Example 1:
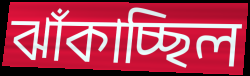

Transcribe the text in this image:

ঝাঁকাচ্ছিল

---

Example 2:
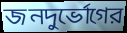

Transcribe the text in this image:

জনদুর্ভোগের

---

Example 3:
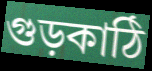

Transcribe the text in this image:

গুড়কাঠি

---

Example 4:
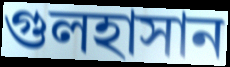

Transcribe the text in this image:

গুলহাসান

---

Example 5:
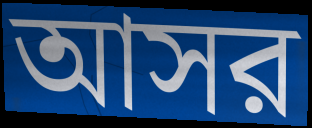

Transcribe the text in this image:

আসর